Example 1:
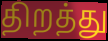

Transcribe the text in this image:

திறத்து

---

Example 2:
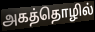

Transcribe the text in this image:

அகத்தொழில்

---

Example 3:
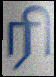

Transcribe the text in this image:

ரி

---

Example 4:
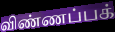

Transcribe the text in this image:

விண்ணப்பக்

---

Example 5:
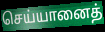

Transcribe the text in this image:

செய்யானைத்